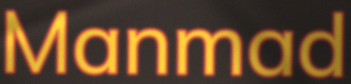
Manmad